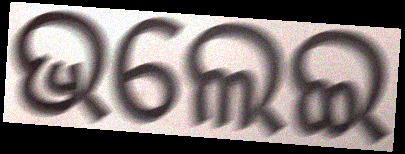
ଭଲେଇ